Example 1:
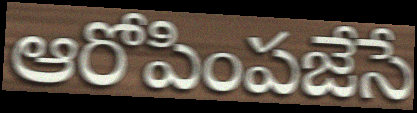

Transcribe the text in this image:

ఆరోపింపజేసే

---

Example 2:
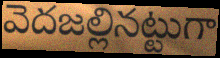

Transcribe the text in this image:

వెదజల్లినట్టుగా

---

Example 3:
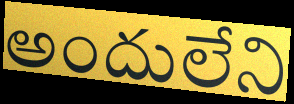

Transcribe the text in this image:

అందులేని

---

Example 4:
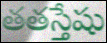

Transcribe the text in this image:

తతస్తేషు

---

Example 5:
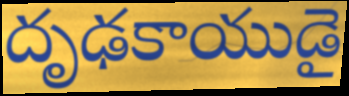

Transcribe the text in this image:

దృఢకాయుడై